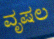
ವೃಷಲ